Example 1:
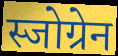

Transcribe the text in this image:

स्जोग्रेन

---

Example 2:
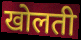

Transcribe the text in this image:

खोलती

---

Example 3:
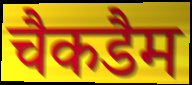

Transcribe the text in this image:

चैकडैम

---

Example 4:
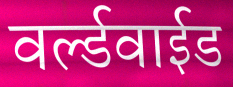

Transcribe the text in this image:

वर्ल्डवाईड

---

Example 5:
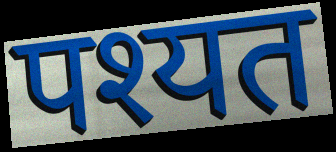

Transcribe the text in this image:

पश्यत